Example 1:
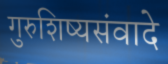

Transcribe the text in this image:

गुरुशिष्यसंवादे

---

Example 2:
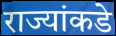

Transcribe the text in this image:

राज्यांकडे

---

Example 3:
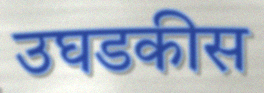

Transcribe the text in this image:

उघडकीस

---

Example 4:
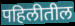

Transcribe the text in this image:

पहिलीतील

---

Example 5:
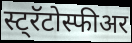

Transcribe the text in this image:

स्ट्रॅटोस्फीअर